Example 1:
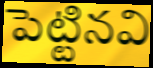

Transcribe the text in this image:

పెట్టినవి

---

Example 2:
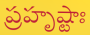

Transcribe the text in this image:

ప్రహృష్టాః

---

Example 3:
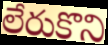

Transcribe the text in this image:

లేరుకొని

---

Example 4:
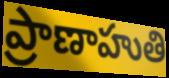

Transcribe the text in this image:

ప్రాణాహుతి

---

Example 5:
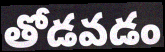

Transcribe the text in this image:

తోడవడం